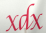
xdx